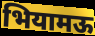
भियामऊ